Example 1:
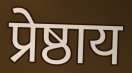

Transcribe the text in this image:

प्रेष्ठाय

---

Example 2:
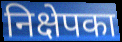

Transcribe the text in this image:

निक्षेपका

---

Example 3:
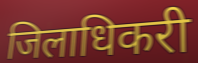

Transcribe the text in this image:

जिलाधिकरी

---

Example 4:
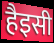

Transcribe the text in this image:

हैइसी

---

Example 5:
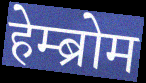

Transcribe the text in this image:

हेम्ब्रोम